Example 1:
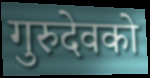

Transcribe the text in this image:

गुरुदेवको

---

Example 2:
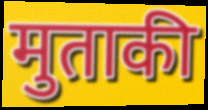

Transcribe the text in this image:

मुताकी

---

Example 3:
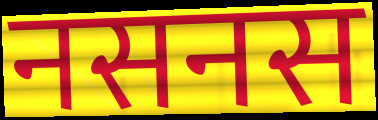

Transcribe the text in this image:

नसनस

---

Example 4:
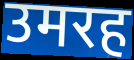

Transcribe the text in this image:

उमरह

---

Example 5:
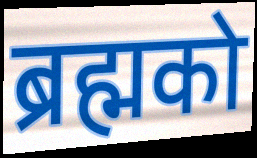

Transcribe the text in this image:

ब्रह्मको